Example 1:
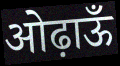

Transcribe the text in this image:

ओढ़ाऊँ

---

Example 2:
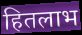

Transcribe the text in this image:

हितलाभ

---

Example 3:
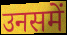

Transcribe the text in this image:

उनसमें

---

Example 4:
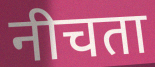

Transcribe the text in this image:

नीचता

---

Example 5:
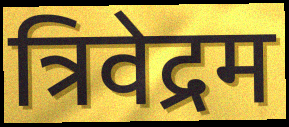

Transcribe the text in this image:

त्रिवेद्रम